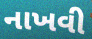
નાખવી